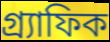
গ্র্যাফিক